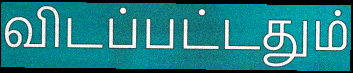
விடப்பட்டதும்